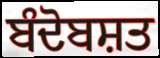
ਬੰਦੋਬਸ਼ਤ